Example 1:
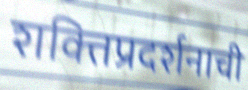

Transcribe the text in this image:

शक्तिप्रदर्शनाची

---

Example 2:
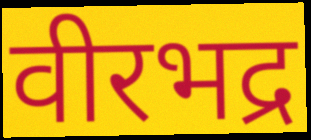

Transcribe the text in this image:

वीरभद्र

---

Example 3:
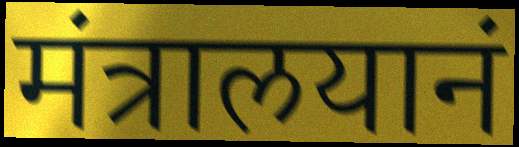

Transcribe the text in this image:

मंत्रालयानं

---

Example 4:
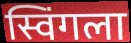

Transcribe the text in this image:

स्विंगला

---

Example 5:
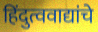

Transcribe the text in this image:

हिंदुत्ववाद्यांचे